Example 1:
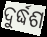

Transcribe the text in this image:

ଦୁର୍ଦ୍ଧଶ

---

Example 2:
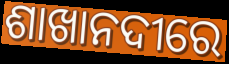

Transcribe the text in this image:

ଶାଖାନଦୀରେ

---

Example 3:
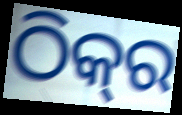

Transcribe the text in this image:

ଠିକ୍‍ର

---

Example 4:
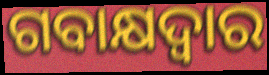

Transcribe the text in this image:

ଗବାକ୍ଷଦ୍ୱାର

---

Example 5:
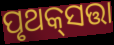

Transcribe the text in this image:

ପୃଥକ୍‌ସତ୍ତା